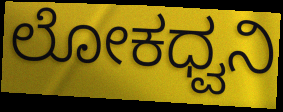
ಲೋಕಧ್ವನಿ